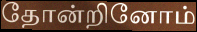
தோன்றினோம்